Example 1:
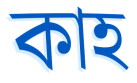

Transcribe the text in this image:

কাহ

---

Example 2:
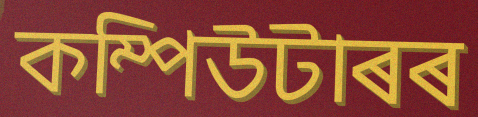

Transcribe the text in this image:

কম্পিউটাৰৰ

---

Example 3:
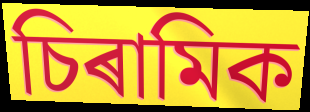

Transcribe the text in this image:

চিৰামিক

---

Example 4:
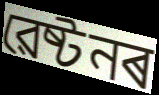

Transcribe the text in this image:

ৱেষ্টনৰ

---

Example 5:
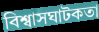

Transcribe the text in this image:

বিশ্বাসঘাটকতা